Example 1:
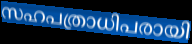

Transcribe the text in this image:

സഹപത്രാധിപരായി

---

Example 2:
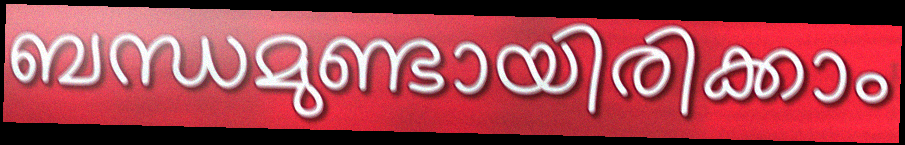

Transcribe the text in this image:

ബന്ധമുണ്ടായിരിക്കാം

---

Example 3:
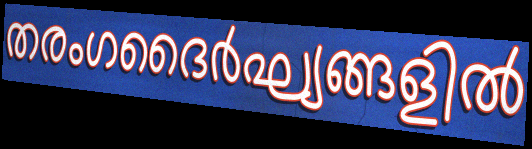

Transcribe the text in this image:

തരംഗദൈർഘ്യങ്ങളിൽ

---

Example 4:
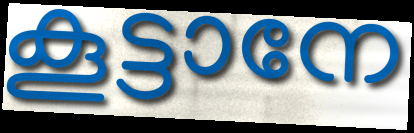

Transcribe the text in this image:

കൂട്ടാനേ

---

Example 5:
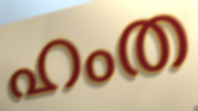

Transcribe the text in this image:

ഹംത